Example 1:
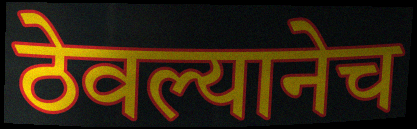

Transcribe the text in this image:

ठेवल्यानेच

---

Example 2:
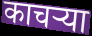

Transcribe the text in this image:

काचऱ्या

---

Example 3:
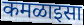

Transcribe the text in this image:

कमळाइसा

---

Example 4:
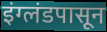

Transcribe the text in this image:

इंग्लंडपासून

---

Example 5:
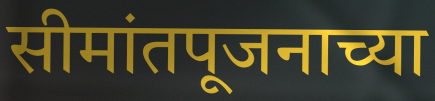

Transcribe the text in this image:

सीमांतपूजनाच्या